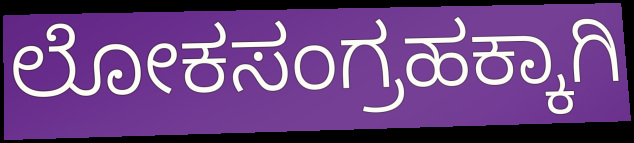
ಲೋಕಸಂಗ್ರಹಕ್ಕಾಗಿ